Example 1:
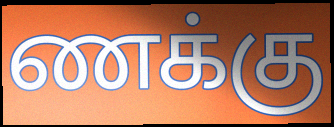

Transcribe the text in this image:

ணக்கு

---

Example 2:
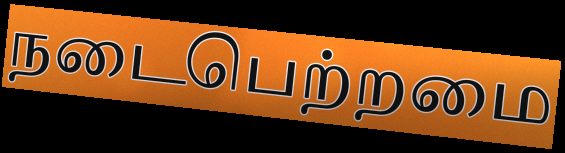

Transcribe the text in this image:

நடைபெற்றமை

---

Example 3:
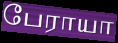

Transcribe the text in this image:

பேராயா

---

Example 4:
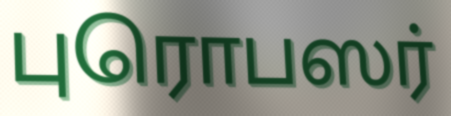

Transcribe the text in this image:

புரொபஸர்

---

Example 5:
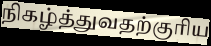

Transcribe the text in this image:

நிகழ்த்துவதற்குரிய